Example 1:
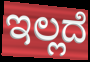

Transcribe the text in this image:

ಇಲ್ಲದೆ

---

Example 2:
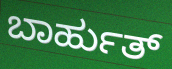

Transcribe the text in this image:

ಬಾರ್ಹುತ್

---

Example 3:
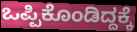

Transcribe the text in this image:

ಒಪ್ಪಿಕೊಂಡಿದ್ದಕ್ಕೆ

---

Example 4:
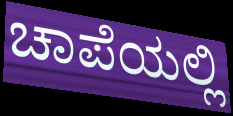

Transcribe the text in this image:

ಚಾಪೆಯಲ್ಲಿ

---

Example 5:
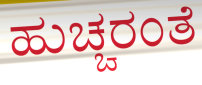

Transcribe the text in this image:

ಹುಚ್ಚರಂತೆ